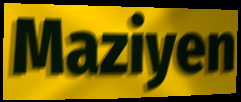
Maziyen